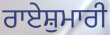
ਰਾਏਸ਼ੁਮਾਰੀ